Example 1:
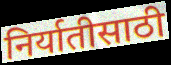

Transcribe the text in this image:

निर्यातीसाठी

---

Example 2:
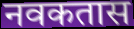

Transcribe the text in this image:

नवकतास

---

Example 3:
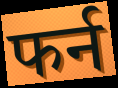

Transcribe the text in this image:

फर्न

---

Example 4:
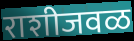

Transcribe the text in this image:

राशीजवळ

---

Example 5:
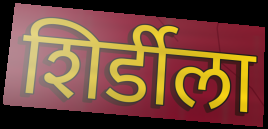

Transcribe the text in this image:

शिर्डीला